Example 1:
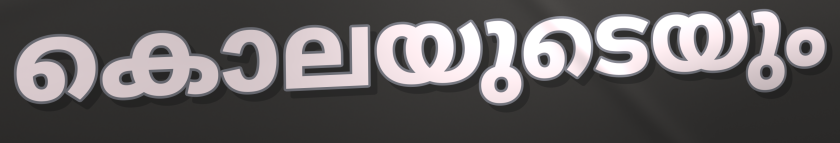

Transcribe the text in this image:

കൊലയുടെയും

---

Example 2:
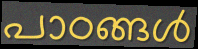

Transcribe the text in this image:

പാഠങ്ങൾ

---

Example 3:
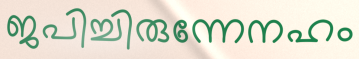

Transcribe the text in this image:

ജപിച്ചിരുന്നേനഹം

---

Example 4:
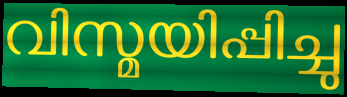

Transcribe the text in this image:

വിസ്മയിപ്പിച്ചു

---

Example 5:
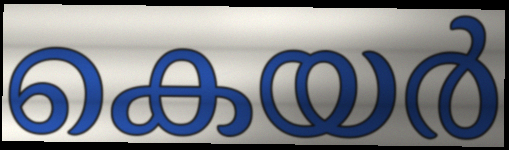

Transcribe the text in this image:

കെയർ